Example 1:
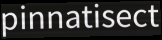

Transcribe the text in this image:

pinnatisect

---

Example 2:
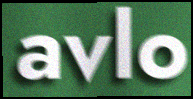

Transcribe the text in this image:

avlo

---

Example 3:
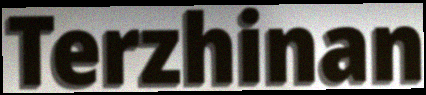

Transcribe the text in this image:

Terzhinan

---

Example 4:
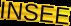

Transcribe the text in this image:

INSEE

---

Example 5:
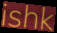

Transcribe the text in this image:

ishk